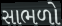
સાભળો